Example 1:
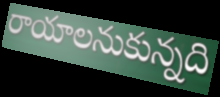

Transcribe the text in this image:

రాయాలనుకున్నది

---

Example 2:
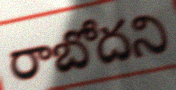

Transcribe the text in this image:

రాబోదని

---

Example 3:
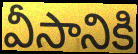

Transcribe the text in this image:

వీసానికి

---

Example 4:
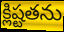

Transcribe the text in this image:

క్లిష్టతను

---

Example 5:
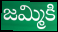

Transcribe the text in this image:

జమ్మికి